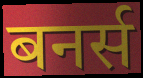
बनर्स